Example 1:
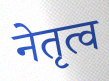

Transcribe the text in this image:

नेतृत्व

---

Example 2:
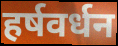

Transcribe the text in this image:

हर्षवर्धन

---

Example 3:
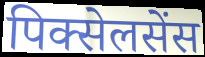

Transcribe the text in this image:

पिक्सेलसेंस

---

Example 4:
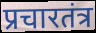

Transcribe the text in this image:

प्रचारतंत्र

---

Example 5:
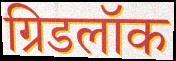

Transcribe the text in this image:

ग्रिडलॉक